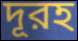
দূরহ